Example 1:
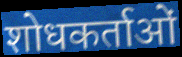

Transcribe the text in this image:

शोधकर्ताओं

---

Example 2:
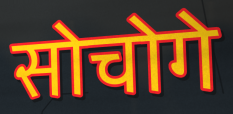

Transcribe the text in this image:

सोचोगे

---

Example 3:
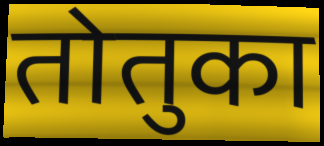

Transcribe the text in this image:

तोतुका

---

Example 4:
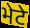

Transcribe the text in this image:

भेटे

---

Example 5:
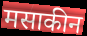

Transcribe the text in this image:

मसाकीन